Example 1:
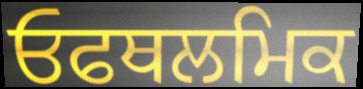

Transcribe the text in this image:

ਓਫਥਲਮਿਕ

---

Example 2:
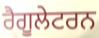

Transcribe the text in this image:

ਰੈਗੂਲੇਟਰਨ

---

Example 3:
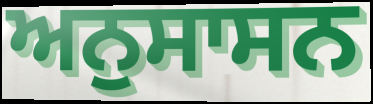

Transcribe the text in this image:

ਅਨੁਸਾਸਨ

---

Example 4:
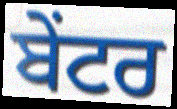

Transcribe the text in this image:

ਬੇਂਟਰ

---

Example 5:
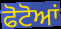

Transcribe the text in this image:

ਫੋਟੋਆਂ